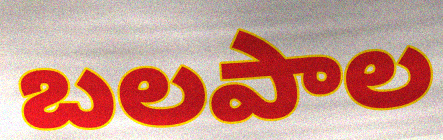
బలపాల